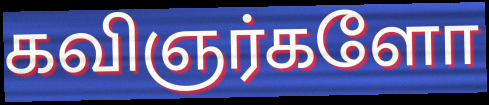
கவிஞர்களோ